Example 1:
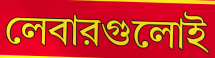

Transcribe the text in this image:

লেবারগুলোই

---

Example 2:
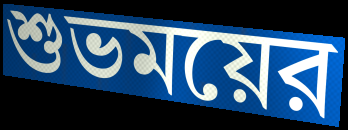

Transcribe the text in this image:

শুভময়ের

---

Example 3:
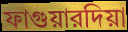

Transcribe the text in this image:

ফাগুয়ারদিয়া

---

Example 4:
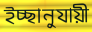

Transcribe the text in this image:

ইচ্ছানুযায়ী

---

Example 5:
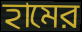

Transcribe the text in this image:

হামের